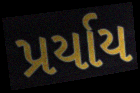
પ્રર્યાય